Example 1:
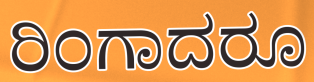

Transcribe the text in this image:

ರಿಂಗಾದರೂ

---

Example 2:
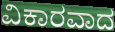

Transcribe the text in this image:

ವಿಕಾರವಾದ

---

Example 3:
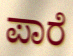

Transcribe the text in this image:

ಪಾರೆ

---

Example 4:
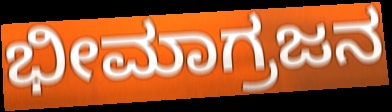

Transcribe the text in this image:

ಭೀಮಾಗ್ರಜನ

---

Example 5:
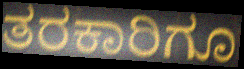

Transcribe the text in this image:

ತರಕಾರಿಗೂ